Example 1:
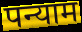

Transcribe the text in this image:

पन्याम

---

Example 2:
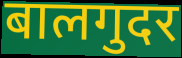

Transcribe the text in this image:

बालगुदर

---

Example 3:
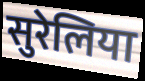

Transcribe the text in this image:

सुरेलिया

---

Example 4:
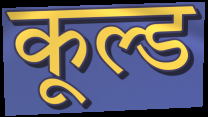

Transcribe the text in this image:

कूल्ड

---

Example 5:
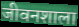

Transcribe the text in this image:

जीवनशाला